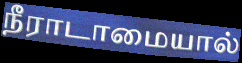
நீராடாமையால்